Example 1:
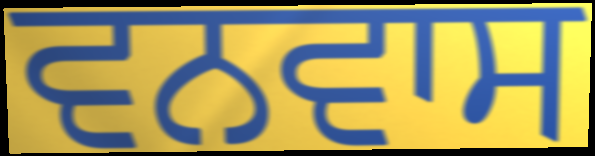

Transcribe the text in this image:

ਵਨਵਾਸ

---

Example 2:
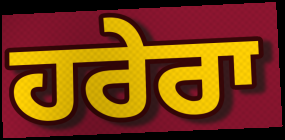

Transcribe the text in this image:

ਹਰੇਰਾ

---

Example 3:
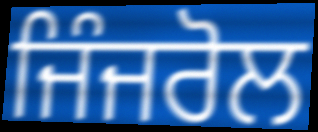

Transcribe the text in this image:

ਜਿੰਜਰੋਲ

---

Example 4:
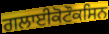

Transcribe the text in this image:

ਗਲਾਈਕੋਟੌਕਸਿਨ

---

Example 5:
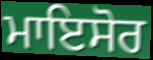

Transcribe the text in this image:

ਮਾਇਸੋਰ